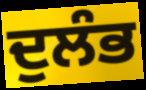
ਦੁਲੰਭ